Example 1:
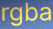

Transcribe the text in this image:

rgba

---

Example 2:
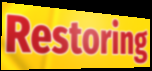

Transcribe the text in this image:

Restoring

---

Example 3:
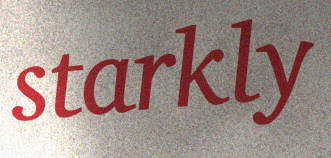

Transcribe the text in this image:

starkly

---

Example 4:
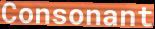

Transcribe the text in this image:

Consonant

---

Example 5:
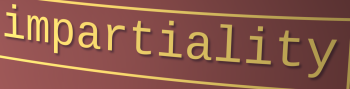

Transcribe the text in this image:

impartiality